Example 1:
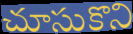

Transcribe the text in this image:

చూసుకొని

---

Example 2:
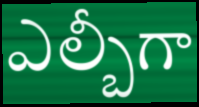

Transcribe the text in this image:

ఎల్బీగా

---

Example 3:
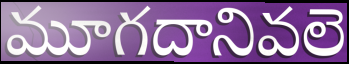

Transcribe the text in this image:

మూగదానివలె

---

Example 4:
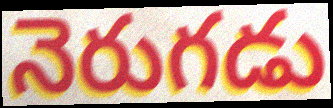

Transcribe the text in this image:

నెరుగడు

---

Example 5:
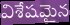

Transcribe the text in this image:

విశేషమైన